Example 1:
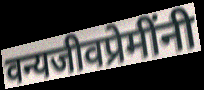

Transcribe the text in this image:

वन्यजीवप्रेमींनी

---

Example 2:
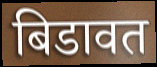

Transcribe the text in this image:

बिडावत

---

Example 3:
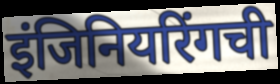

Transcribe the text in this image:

इंजिनियरिंगची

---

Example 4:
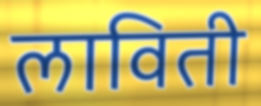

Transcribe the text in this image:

लाविती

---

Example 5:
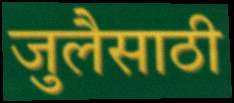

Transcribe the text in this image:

जुलैसाठी